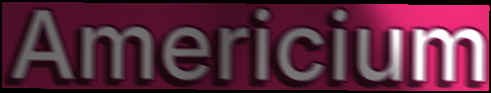
Americium